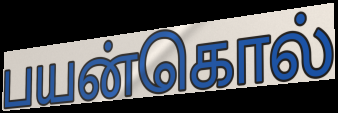
பயன்கொல்